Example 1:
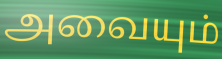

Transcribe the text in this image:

அவையும்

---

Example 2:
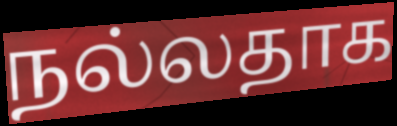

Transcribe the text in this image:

நல்லதாக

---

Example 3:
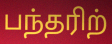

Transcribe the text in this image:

பந்தரிற்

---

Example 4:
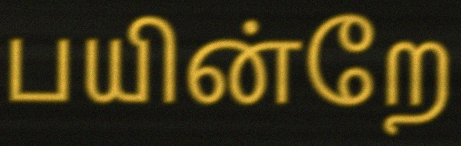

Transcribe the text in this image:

பயின்றே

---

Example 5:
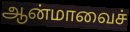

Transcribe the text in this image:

ஆன்மாவைச்